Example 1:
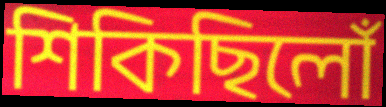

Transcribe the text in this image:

শিকিছিলোঁ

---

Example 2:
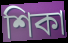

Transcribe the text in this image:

শিকা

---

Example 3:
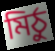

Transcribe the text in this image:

মিঠু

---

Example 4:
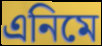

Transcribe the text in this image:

এনিমে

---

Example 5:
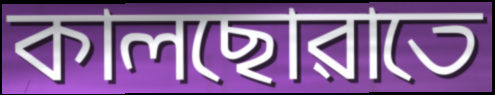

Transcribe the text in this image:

কালছোৱাতে